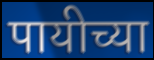
पायीच्या